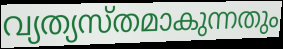
വ്യത്യസ്തമാകുന്നതും